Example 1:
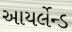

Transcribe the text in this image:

આયર્લેન્ડ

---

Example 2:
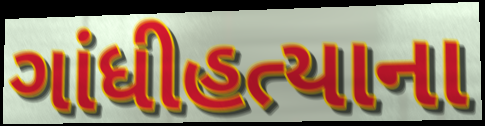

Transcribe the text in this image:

ગાંધીહત્યાના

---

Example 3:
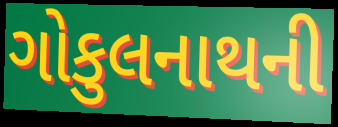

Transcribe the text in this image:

ગોકુલનાથની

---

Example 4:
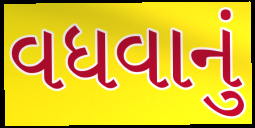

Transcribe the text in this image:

વધવાનું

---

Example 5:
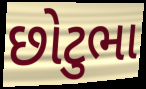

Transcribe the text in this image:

છોટુભા